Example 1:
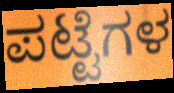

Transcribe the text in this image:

ಪಟ್ಟೆಗಳ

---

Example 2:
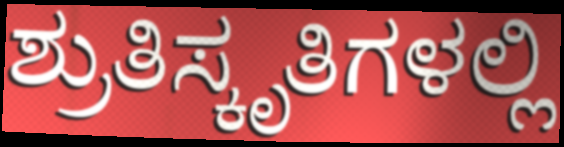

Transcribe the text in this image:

ಶ್ರುತಿಸ್ಕೃತಿಗಳಲ್ಲಿ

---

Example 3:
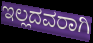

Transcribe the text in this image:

ಇಲ್ಲದವರಾಗಿ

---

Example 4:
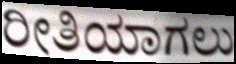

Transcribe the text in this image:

ರೀತಿಯಾಗಲು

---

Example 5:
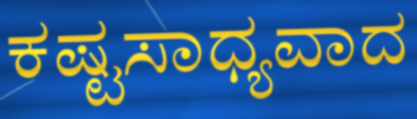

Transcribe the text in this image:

ಕಷ್ಟಸಾಧ್ಯವಾದ